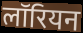
लॉरियन